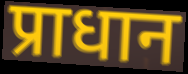
प्राधान